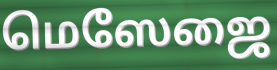
மெஸேஜை